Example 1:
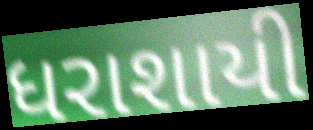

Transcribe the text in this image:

ધરાશાયી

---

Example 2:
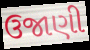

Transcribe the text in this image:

ઉજાણી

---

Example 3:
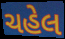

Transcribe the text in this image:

ચહેલ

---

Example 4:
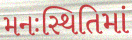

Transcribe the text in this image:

મનઃસ્થિતિમાં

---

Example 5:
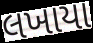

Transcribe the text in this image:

લખાયા